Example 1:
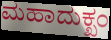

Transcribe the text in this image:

ಮಹಾದುಕ್ಖಂ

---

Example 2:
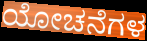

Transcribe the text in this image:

ಯೋಚನೆಗಳ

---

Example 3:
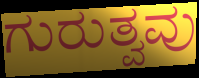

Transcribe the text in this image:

ಗುರುತ್ವವು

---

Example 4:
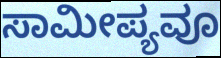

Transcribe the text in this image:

ಸಾಮೀಪ್ಯವೂ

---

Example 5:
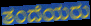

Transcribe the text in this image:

ತಂದೆಯರು